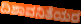
ದಿಶಾವನಿತೆಯರ